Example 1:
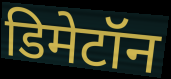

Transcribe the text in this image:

डिमेटॉन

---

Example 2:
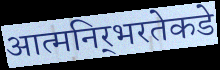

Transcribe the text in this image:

आत्मनिर्भरतेकडे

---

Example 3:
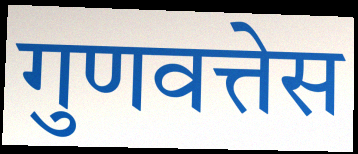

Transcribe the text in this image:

गुणवत्तेस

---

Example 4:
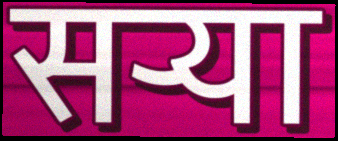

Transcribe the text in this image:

सऱ्या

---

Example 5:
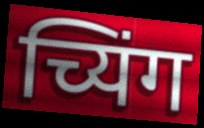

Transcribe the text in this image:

च्यिंग